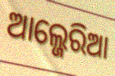
ଆଲ୍ଜେରିଆ